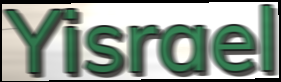
Yisrael